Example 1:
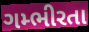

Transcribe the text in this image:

ગમ્ભીરતા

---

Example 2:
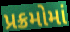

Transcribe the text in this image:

પ્રક્રમોમાં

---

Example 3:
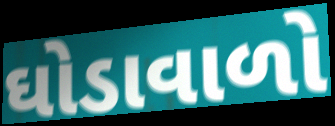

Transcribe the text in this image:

ઘોડાવાળો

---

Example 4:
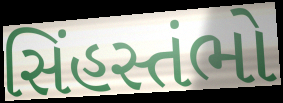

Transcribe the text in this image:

સિંહસ્તંભો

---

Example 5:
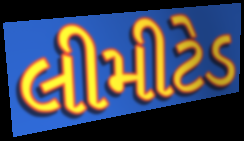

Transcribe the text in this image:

લીમીટેડ